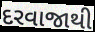
દરવાજાથી